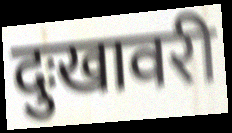
दुःखावरी